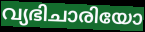
വ്യഭിചാരിയോ